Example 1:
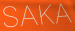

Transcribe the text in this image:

SAKA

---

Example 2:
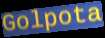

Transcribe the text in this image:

Golpota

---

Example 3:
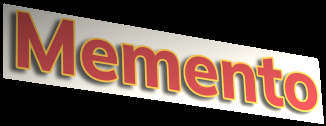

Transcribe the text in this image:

Memento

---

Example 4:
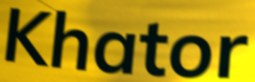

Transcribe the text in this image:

Khator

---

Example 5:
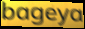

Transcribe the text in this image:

bageya